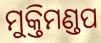
ମୁକ୍ତିମଣ୍ଡପ